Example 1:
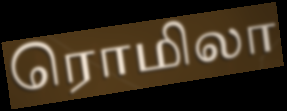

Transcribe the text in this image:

ரொமிலா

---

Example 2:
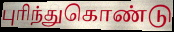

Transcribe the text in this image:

புரிந்துகொண்டு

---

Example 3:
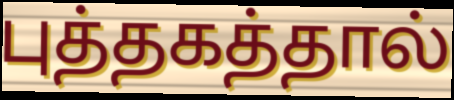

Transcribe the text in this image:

புத்தகத்தால்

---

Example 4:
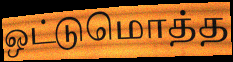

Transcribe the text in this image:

ஒட்டுமொத்த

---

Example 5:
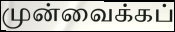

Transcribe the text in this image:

முன்வைக்கப்